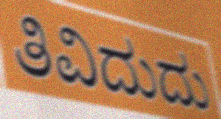
ತಿವಿದುದು